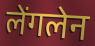
लेंगलेन